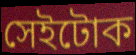
সেইটোক